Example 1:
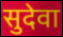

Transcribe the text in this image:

सुदेवा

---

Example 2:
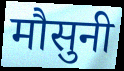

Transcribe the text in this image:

मौसुनी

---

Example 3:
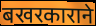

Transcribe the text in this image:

बखरकाराने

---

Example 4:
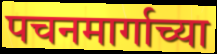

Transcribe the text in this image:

पचनमार्गाच्या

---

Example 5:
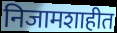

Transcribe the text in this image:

निजामशाहीत